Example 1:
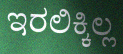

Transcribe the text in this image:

ಇರಲಿಕ್ಕಿಲ್ಲ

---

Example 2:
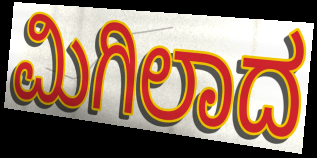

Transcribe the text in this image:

ಮಿಗಿಲಾದ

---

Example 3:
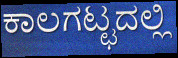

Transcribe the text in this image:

ಕಾಲಗಟ್ಟದಲ್ಲಿ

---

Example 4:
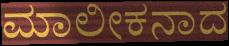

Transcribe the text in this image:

ಮಾಲೀಕನಾದ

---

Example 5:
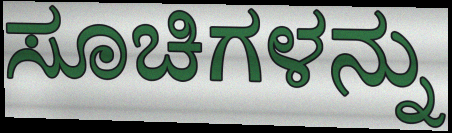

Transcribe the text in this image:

ಸೂಚಿಗಳನ್ನು